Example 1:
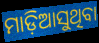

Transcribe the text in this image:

ମାଡ଼ିଆସୁଥିବା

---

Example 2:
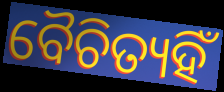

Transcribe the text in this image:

ବୈଚିତ୍ୟହିଁ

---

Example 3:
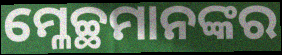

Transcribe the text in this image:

ମ୍ଳେଚ୍ଛମାନଙ୍କର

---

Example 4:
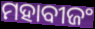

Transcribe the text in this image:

ମହାବୀଜଂ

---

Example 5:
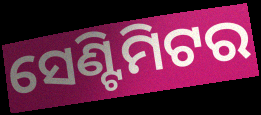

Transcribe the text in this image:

ସେଣ୍ଟିମିଟର